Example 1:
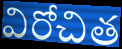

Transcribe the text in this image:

విరోచిత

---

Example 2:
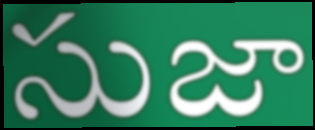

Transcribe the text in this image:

సుజా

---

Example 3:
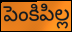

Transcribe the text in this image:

పెంకిపిల్ల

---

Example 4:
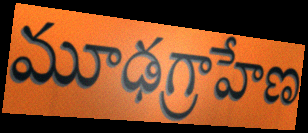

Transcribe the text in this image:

మూఢగ్రాహేణ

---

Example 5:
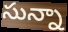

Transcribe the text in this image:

సున్నా